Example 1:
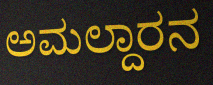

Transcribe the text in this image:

ಅಮಲ್ದಾರನ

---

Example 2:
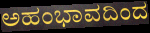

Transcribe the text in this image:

ಅಹಂಭಾವದಿಂದ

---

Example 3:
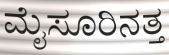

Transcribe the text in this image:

ಮೈಸೂರಿನತ್ತ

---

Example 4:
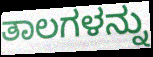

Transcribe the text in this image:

ತಾಲಗಳನ್ನು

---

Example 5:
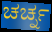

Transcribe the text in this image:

ಚರ್ಚ್ನ